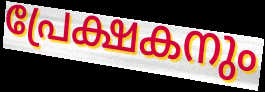
പ്രേക്ഷകനും